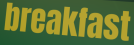
breakfast